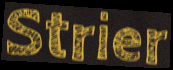
Strier